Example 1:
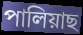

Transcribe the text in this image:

পালিয়াছ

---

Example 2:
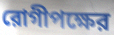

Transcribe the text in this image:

রোগীপক্ষের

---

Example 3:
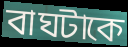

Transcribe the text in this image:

বাঘটাকে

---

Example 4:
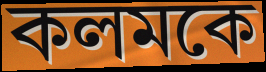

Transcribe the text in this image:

কলমকে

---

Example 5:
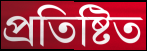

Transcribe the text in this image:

প্রতিষ্টিত